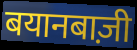
बयानबाज़ी